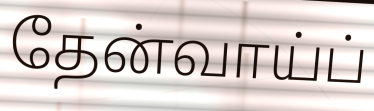
தேன்வாய்ப்